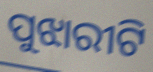
ପୁଝାରୀଟି